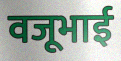
वजूभाई